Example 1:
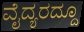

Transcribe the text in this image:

ವೈದ್ಯರದ್ದೂ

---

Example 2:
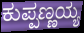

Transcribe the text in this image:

ಕುಪ್ಪಣ್ಣಯ್ಯ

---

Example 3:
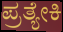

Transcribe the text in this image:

ಪ್ರತ್ಯೇಕಿ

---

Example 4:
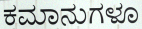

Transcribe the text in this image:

ಕಮಾನುಗಳೂ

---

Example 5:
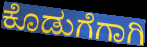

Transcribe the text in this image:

ಕೊಡುಗೆಗಾಗಿ